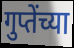
गुप्तेंच्या